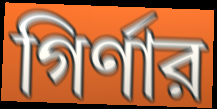
গির্ণার